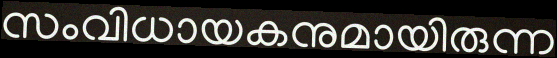
സംവിധായകനുമായിരുന്ന